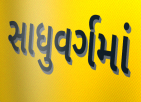
સાધુવર્ગમાં